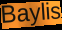
Baylis